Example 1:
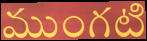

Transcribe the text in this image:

ముంగటి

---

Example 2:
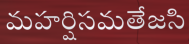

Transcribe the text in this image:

మహర్షిసమతేజసి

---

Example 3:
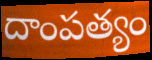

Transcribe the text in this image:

దాంపత్యం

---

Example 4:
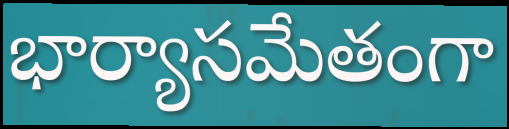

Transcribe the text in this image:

భార్యాసమేతంగా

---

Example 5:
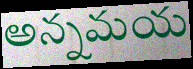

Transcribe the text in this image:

అన్నమయ